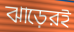
ঝাড়েরই